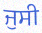
ਜੁਸੀ